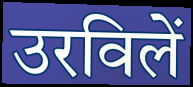
उरविलें